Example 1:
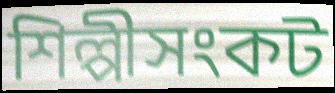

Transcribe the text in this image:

শিল্পীসংকট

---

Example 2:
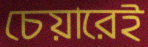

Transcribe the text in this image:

চেয়ারেই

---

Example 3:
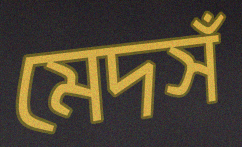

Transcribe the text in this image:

মেদসঁ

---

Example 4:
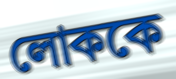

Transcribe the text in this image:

লোককে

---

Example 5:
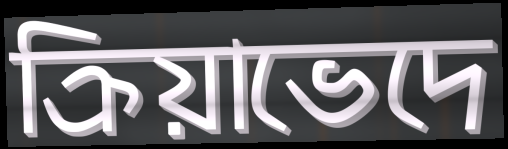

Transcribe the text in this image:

ক্রিয়াভেদে